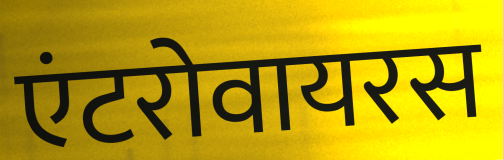
एंटरोवायरस